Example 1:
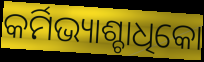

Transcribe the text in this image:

କର୍ମିଭ୍ୟାଶ୍ଚାଧିକୋ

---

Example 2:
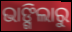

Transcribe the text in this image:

ଭାଙ୍ଗିଲାରୁ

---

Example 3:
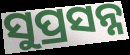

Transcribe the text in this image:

ସୁପ୍ରସନ୍ନ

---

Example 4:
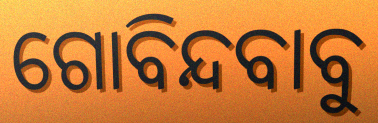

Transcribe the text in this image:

ଗୋବିନ୍ଦବାବୁ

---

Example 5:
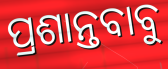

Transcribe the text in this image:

ପ୍ରଶାନ୍ତବାବୁ